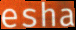
esha